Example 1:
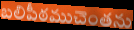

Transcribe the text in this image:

బలిపీఠముచెంతను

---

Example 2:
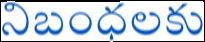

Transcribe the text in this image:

నిబంధలకు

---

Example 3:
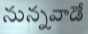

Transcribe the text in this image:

నున్నవాడే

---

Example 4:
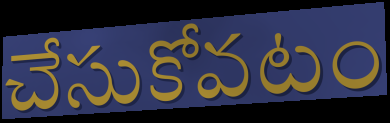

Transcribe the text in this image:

చేసుకోవటం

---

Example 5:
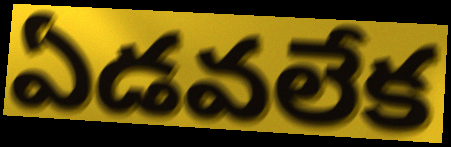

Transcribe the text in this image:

ఏడవలేక